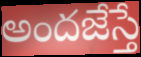
అందజేస్తే